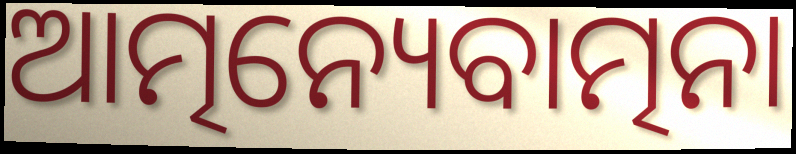
ଆତ୍ମନ୍ୟେବାତ୍ମନା